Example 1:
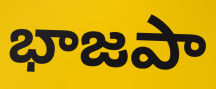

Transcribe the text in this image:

భాజపా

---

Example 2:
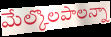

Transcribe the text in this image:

మేల్కొలపాలన్నా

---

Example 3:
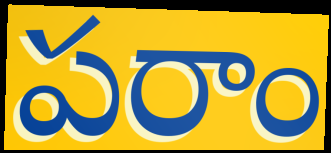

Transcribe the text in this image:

పరాం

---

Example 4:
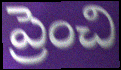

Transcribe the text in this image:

ప్రెంచి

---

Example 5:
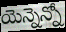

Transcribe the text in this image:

యెన్నెన్నో